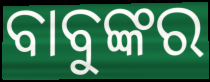
ବାବୁଙ୍କର